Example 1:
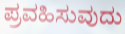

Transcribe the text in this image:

ಪ್ರವಹಿಸುವುದು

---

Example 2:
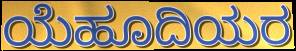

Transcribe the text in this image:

ಯೆಹೂದಿಯರ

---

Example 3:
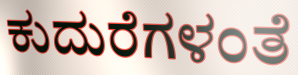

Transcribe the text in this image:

ಕುದುರೆಗಳಂತೆ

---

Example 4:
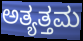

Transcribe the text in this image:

ಅತ್ಯತ್ತಮ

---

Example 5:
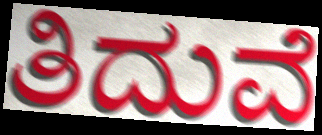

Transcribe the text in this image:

ತಿದುವೆ